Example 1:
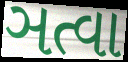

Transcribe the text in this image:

ઞત્વા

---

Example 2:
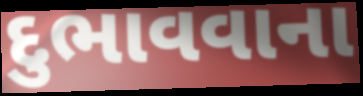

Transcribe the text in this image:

દુભાવવાના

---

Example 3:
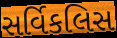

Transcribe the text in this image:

સર્વિકલિસ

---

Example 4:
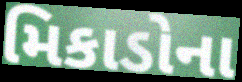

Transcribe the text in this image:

મિકાડોના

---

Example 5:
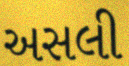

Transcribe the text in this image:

અસલી